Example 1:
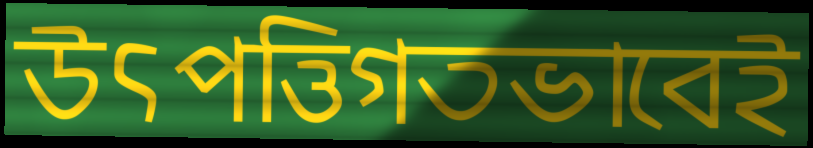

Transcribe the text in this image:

উৎপত্তিগতভাবেই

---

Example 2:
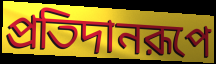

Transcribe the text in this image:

প্রতিদানরূপে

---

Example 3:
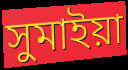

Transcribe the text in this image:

সুমাইয়া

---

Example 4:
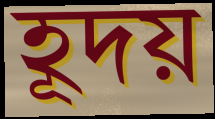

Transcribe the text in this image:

হূদয়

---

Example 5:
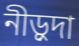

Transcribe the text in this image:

নীড়ুদা